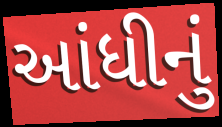
આંધીનું